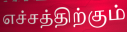
எச்சத்திற்கும்